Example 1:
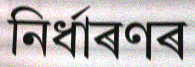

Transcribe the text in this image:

নিৰ্ধাৰণৰ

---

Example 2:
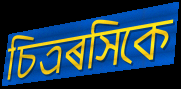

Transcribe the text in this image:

চিত্ৰৰসিকে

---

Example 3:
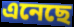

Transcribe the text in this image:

এনেছে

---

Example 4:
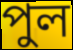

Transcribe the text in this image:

পুল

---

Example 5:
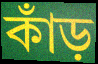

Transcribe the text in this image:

কাঁড়